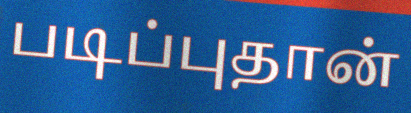
படிப்புதான்